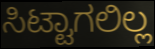
ಸಿಟ್ಟಾಗಲಿಲ್ಲ